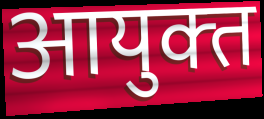
आयुक्‍त